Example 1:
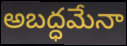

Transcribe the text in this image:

అబద్ధమేనా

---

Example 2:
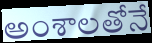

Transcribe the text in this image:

అంశాలతోనే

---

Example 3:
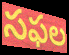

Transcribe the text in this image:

సఫల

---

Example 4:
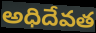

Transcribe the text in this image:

అధిదేవత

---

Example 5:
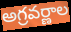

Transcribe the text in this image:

అగ్రవర్ణాల